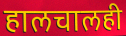
हालचालही